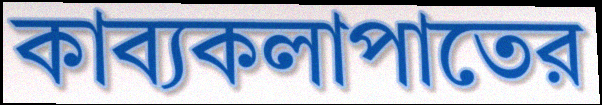
কাব্যকলাপাতের